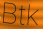
Btk